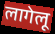
लागेलू